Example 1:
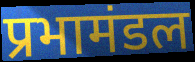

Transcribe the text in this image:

प्रभामंडल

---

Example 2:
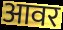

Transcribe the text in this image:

आवर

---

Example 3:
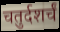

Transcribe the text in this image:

चतुर्दशर्चं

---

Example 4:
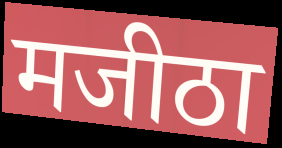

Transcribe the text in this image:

मजीठा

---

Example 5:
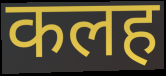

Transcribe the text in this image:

कलह